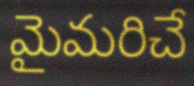
మైమరిచే